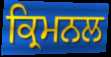
ਕ੍ਰਿਮਨਲ